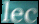
lec